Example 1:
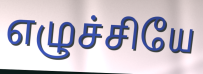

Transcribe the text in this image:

எழுச்சியே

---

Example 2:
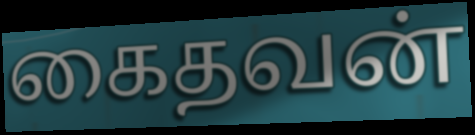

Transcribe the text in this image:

கைதவன்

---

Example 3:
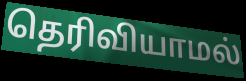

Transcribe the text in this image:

தெரிவியாமல்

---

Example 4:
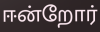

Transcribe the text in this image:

ஈன்றோர்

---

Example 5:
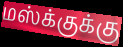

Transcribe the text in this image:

மஸ்க்குக்கு